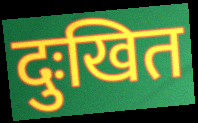
दुःखित